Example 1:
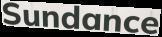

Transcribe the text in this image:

Sundance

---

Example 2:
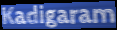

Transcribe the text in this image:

Kadigaram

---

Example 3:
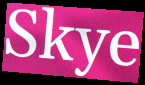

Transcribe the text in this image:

Skye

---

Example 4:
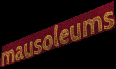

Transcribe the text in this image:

mausoleums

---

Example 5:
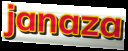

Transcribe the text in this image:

janaza